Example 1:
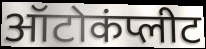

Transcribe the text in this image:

ऑटोकंप्लीट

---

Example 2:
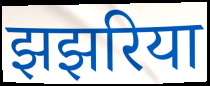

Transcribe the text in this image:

झझरिया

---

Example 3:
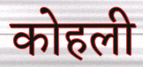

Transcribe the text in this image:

कोहली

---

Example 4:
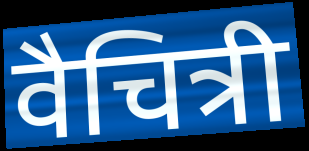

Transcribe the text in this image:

वैचित्री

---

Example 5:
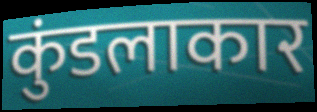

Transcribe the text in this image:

कुंडलाकार